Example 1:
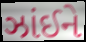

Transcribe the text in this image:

ઝાંઈને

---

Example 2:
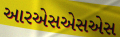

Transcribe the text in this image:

આરએસએસએસ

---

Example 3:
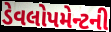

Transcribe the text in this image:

ડેવલોપમેન્ટની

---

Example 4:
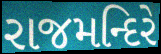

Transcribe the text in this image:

રાજમન્દિરે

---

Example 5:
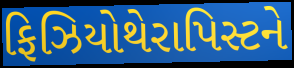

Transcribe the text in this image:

ફિઝિયોથેરાપિસ્ટને